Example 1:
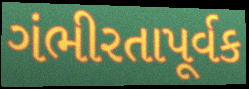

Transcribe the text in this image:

ગંભીરતાપૂર્વક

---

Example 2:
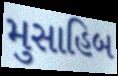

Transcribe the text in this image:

મુસાહિબ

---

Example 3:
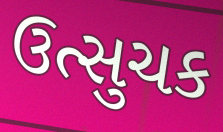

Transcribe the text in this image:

ઉત્સુચક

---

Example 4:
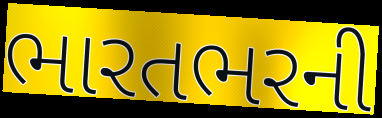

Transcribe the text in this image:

ભારતભરની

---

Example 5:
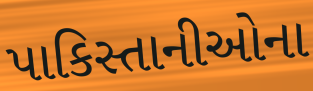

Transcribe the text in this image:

પાકિસ્તાનીઓના